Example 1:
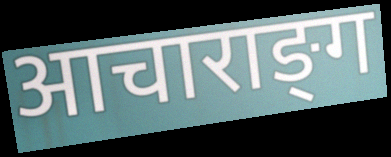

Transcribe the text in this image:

आचाराङ्ग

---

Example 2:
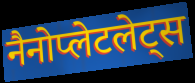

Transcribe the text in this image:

नैनोप्लेटलेट्स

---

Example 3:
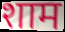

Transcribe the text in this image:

शाम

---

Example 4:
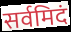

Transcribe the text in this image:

सर्वमिदं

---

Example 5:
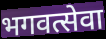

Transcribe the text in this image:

भगवत्सेवा